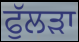
ਫੁੱਲੜਾ